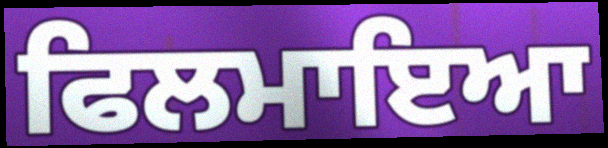
ਫਿਲਮਾਇਆ